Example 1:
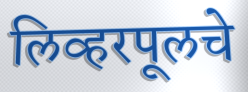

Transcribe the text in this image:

लिव्हरपूलचे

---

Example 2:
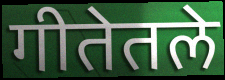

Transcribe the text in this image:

गीतेतले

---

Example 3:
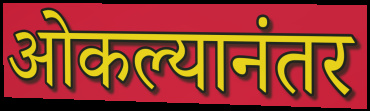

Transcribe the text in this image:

ओकल्यानंतर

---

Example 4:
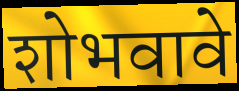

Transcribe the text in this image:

शोभवावे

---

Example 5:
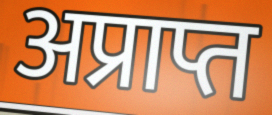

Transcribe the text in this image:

अप्राप्त